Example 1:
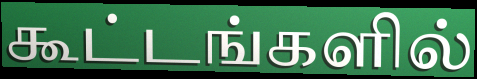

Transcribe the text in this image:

கூட்டங்களில்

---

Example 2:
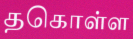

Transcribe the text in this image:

தகொள்ள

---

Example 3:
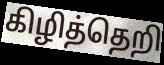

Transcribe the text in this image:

கிழித்தெறி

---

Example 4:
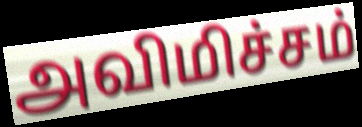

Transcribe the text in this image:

அவிமிச்சம்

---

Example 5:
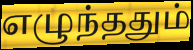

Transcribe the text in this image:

எழுந்ததும்